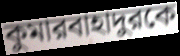
কুমারবাহাদুরকে